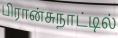
பிரான்சுநாட்டில்